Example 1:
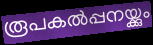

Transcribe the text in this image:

രൂപകൽപ്പനയ്ക്കും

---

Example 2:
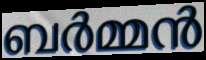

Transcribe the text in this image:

ബർമ്മൻ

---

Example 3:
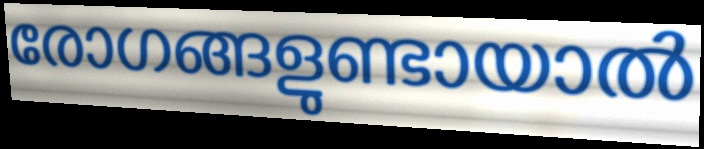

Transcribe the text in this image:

രോഗങ്ങളുണ്ടായാൽ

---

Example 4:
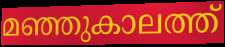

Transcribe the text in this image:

മഞ്ഞുകാലത്ത്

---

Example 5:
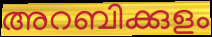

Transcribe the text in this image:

അറബിക്കുളം